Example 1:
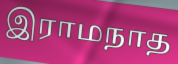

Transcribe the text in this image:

இராமநாத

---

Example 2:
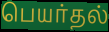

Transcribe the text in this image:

பெயர்தல்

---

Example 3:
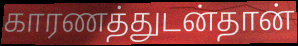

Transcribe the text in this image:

காரணத்துடன்தான்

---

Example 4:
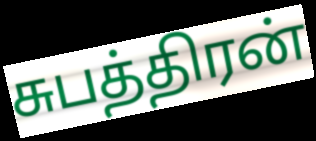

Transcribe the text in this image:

சுபத்திரன்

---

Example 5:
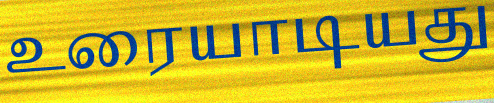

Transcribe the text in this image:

உரையாடியது